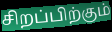
சிறப்பிற்கும்